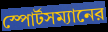
স্পোর্টসম্যানের